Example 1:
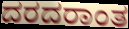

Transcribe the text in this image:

ದರದರಾಂತ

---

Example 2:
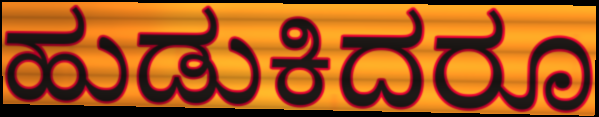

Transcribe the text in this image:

ಹುಡುಕಿದರೂ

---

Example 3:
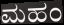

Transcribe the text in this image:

ಮಹಂ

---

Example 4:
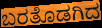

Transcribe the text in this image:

ಬರತೊಡಗಿದ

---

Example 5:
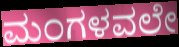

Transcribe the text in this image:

ಮಂಗಳವಲೇ